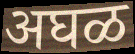
अघळ